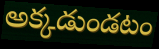
అక్కడుండటం